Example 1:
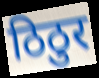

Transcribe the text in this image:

ठिठुर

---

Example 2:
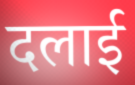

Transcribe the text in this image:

दलाई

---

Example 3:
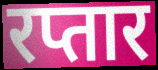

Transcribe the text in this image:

रप्तार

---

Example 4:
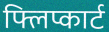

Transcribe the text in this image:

फ्लिप्कार्ट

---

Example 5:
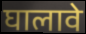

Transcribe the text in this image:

घालावे